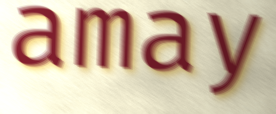
amay